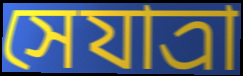
সেযাত্রা